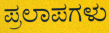
ಪ್ರಲಾಪಗಳು